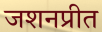
जशनप्रीत